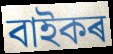
বাইকৰ